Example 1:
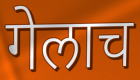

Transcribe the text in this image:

गेलाच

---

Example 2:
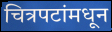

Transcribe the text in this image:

चित्रपटांमधून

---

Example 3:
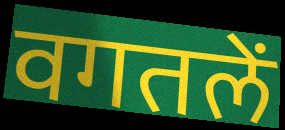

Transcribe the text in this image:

वगतलें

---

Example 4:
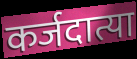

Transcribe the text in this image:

कर्जदात्या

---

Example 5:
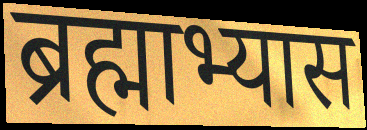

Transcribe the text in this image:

ब्रह्माभ्यास